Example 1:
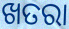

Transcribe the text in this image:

ଖତରା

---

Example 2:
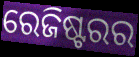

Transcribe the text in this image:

ରେଜିଷ୍ଟରର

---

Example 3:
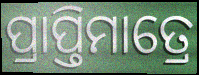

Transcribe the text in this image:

ପ୍ରାପ୍ତିମାତ୍ରେ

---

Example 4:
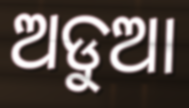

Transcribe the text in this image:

ଅଡୁଆ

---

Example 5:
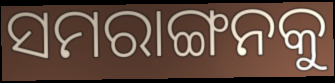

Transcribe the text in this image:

ସମରାଙ୍ଗନକୁ